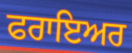
ਫਰਾਇਅਰ